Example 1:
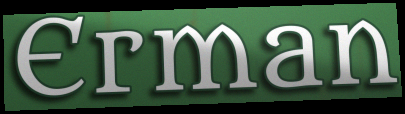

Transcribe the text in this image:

Erman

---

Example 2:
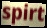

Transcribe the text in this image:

spirt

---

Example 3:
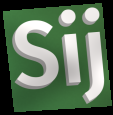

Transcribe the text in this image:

Sij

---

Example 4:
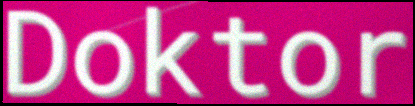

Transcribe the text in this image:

Doktor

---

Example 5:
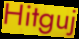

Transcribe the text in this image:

Hitguj